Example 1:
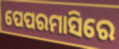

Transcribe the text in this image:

ପେପରମାସିରେ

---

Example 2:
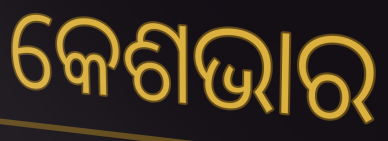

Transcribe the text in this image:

କେଶଭାର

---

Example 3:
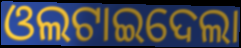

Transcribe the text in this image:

ଓଲଟାଇଦେଲା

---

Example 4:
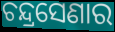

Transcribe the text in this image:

ଚନ୍ଦ୍ରସେଣାର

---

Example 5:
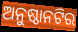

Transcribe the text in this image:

ଅନୁଷ୍ଠାନଟିର